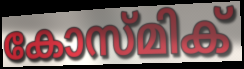
കോസ്മിക്